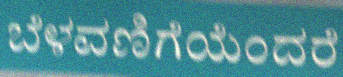
ಬೆಳವಣಿಗೆಯೆಂದರೆ